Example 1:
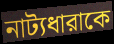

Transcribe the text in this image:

নাট্যধারাকে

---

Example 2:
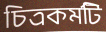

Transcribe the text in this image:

চিত্রকর্মটি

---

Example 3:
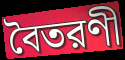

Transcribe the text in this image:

বৈতরণী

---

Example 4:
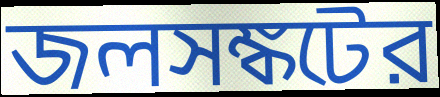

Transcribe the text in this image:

জলসঙ্কটের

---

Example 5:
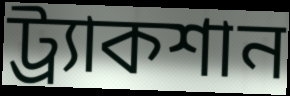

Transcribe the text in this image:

ট্র্যাকশান